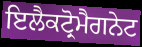
ਇਲੈਕਟ੍ਰੋਮੈਗਨੇਟ